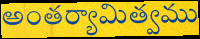
అంతర్యామిత్వము